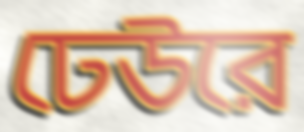
ঢেউরে